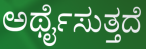
ಅರ್ಥೈಸುತ್ತದೆ